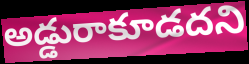
అడ్డురాకూడదని